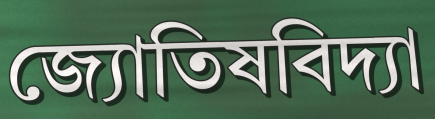
জ্যোতিষবিদ্যা